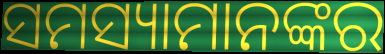
ସମସ୍ୟାମାନଙ୍କର